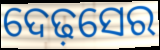
ଦେଢ଼ସେର